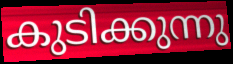
കുടിക്കുന്നു